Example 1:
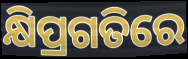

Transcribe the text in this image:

କ୍ଷିପ୍ରଗତିରେ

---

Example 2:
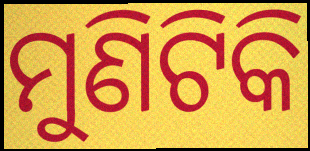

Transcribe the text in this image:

ମୁଣିଟିକି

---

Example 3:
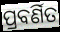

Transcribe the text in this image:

ପ୍ରବର୍ଣିତ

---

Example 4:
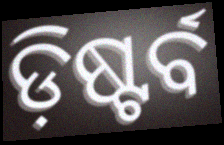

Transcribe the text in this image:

ଡ଼ିଷ୍ଟର୍ବ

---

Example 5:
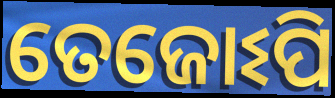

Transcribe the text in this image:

ତେଜୋଽପି